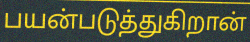
பயன்படுத்துகிறான்